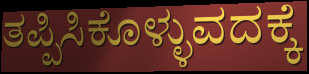
ತಪ್ಪಿಸಿಕೊಳ್ಳುವದಕ್ಕೆ